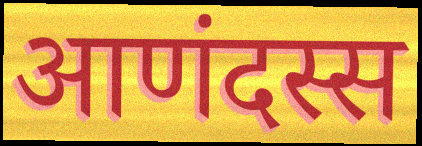
आणंदस्स